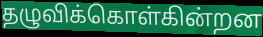
தழுவிக்கொள்கின்றன